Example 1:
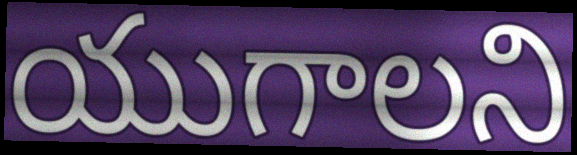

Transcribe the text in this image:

యుగాలని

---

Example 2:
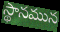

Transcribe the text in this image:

స్థానమున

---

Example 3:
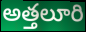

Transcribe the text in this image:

అత్తలూరి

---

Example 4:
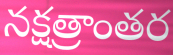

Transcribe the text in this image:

నక్షత్రాంతర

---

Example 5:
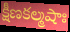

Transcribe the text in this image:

క్షీణకల్మషాః